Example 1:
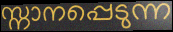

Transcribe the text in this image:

സ്നാനപ്പെടുന്ന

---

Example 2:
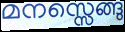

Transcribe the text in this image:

മനസ്സെങ്ങു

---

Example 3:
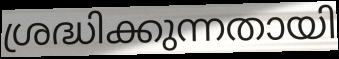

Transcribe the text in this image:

ശ്രദ്ധിക്കുന്നതായി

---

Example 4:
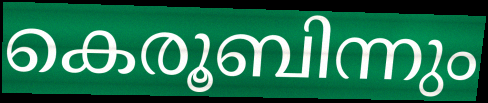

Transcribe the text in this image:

കെരൂബിന്നും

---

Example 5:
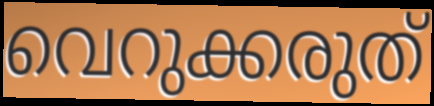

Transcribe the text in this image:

വെറുക്കരുത്